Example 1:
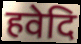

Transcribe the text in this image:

हवेदि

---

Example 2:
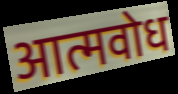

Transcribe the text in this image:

आत्मवोध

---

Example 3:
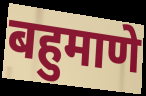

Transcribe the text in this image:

बहुमाणे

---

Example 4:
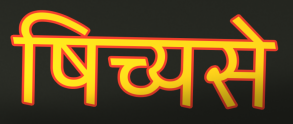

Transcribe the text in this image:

षिच्यसे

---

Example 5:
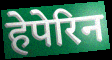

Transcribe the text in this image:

हेपेरिन